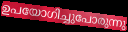
ഉപയോഗിച്ചുപോരുന്നു